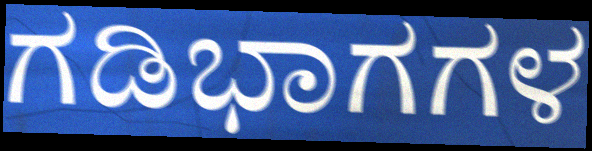
ಗಡಿಭಾಗಗಳ